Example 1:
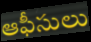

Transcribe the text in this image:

ఆఫీసులు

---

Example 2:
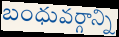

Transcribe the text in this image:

బంధువర్గాన్ని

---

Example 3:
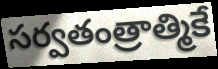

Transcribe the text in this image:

సర్వతంత్రాత్మికే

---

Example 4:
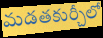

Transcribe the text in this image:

మడతకుర్చీలో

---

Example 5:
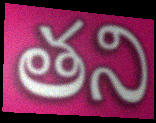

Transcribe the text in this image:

తని